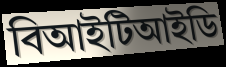
বিআইটিআইডি